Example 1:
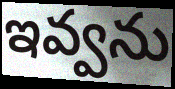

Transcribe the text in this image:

ఇవ్వను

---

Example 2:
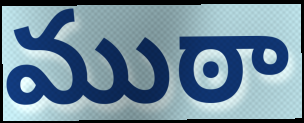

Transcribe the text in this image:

ముఠా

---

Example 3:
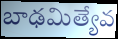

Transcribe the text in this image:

బాఢమిత్యేవ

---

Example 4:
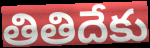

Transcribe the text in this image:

తితిదేకు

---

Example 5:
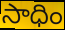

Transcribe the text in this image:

సాధిం